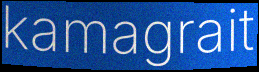
kamagrait